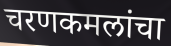
चरणकमलांचा